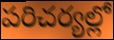
పరిచర్యల్లో